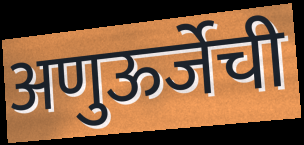
अणुऊर्जेची